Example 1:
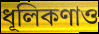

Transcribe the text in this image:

ধূলিকণাও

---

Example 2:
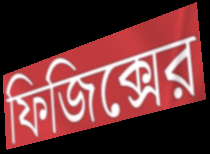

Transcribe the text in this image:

ফিজিক্সের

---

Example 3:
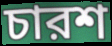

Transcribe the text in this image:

চারশ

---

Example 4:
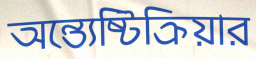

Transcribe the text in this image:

অন্ত্যেষ্টিক্রিয়ার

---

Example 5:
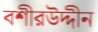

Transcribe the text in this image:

বশীরউদ্দীন